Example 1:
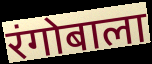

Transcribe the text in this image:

रंगोबाला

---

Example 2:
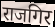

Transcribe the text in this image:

राजगिर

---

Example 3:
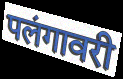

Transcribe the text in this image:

पलंगावरी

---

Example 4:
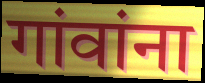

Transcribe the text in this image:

गांवांना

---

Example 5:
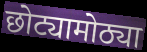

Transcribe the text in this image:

छोट्यामोठ्या